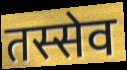
तस्सेव